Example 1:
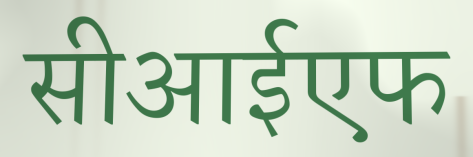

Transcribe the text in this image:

सीआईएफ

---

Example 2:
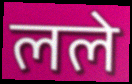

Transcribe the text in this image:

लले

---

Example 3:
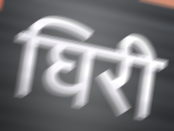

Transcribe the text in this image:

घिरी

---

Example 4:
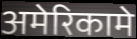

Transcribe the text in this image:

अमेरिकामे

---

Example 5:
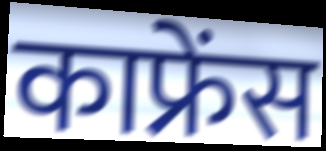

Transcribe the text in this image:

काफ्रेंस